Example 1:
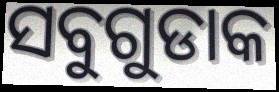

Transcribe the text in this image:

ସବୁଗୁଡାକ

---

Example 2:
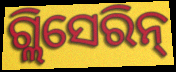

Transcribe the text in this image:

ଗ୍ଲିସେରିନ୍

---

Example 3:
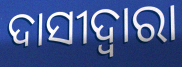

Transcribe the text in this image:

ଦାସୀଦ୍ୱାରା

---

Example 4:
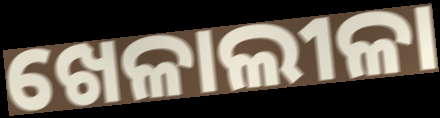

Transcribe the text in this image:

ଖେଳାଲୀଳା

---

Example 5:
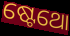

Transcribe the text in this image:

ଷ୍ଟେଥୋ